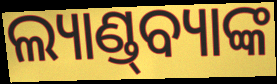
ଲ୍ୟାଣ୍ଡ୍‌ବ୍ୟାଙ୍କ